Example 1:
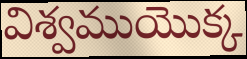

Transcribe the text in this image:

విశ్వముయొక్క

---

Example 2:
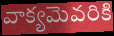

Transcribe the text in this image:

వాక్యమెవరికి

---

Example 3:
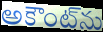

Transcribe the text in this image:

అకౌంట్‌ను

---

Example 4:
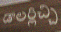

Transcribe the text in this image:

డాలర్లిచ్చి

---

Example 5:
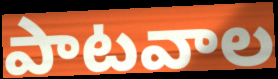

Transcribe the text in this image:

పాటవాల